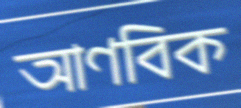
আণবিক